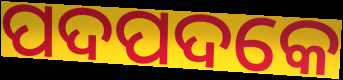
ପଦପଦକେ